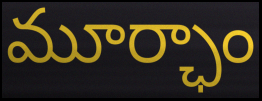
మూర్ఛాం